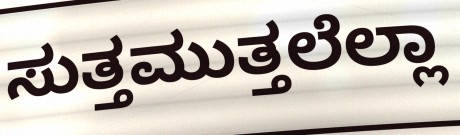
ಸುತ್ತಮುತ್ತಲೆಲ್ಲಾ